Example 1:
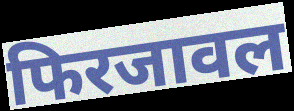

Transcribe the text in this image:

फिरजावल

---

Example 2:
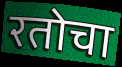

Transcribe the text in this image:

रतोचा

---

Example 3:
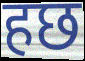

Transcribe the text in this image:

हछ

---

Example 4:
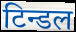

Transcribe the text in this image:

टिन्डल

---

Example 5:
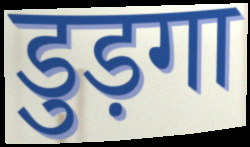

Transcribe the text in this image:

डुड़गा